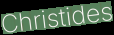
Christides